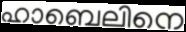
ഹാബെലിനെ